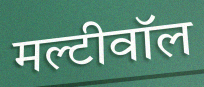
मल्टीवॉल